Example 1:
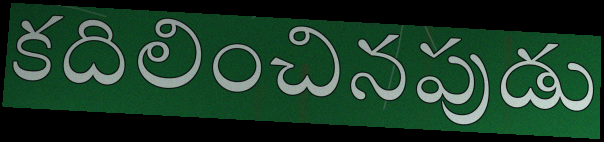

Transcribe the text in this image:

కదిలించినపుడు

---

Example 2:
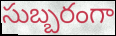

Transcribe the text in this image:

సుబ్బరంగా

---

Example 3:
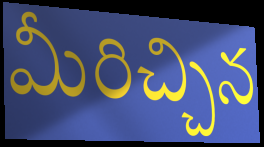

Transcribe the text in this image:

మీరిచ్చిన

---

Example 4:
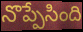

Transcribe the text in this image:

నొప్పేసింది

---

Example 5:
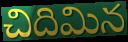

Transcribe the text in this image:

చిదిమిన